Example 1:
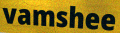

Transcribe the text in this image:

vamshee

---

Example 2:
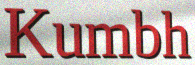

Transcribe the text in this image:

Kumbh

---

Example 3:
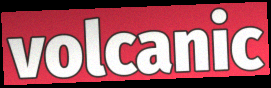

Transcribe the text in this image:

volcanic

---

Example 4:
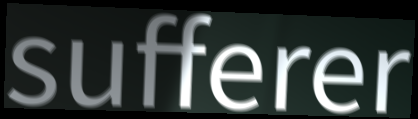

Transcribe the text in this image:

sufferer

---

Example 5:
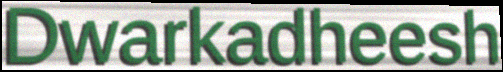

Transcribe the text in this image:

Dwarkadheesh